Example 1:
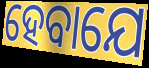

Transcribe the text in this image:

ହେବାଯେ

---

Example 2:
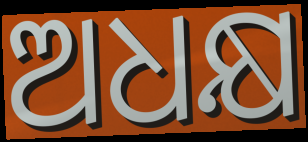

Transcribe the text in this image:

ଅଧକ୍ଷ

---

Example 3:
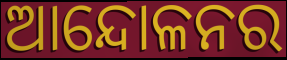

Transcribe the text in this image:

ଆନ୍ଦୋଳନର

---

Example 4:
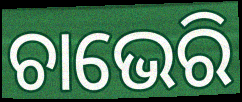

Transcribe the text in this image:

ଚାଭେରି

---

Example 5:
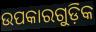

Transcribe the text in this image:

ଉପକାରଗୁଡ଼ିକ